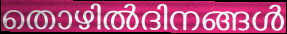
തൊഴിൽദിനങ്ങൾ